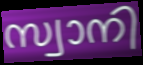
സ്വാനി